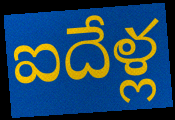
ఐదేళ్ల